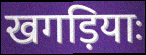
खगड़ियाः